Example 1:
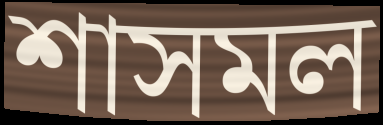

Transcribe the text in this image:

শাসমল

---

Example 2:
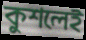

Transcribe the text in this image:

কুশলেই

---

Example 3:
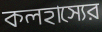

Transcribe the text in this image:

কলহাস্যের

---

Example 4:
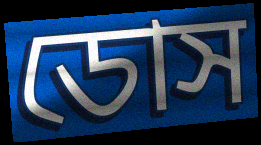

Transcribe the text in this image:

ডোস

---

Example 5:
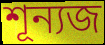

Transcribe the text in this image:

শূন্যজ